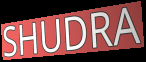
SHUDRA